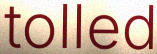
tolled